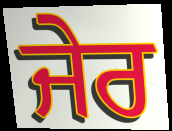
ਜੇਰ